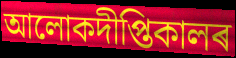
আলোকদীপ্তিকালৰ